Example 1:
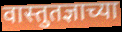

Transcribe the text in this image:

वास्तुतज्ञाच्या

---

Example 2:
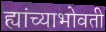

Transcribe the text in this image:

ह्यांच्याभोवती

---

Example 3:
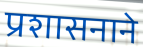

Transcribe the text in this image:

प्रशासनाने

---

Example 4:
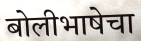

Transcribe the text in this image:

बोलीभाषेचा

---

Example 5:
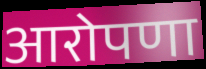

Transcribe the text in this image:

आरोपणा